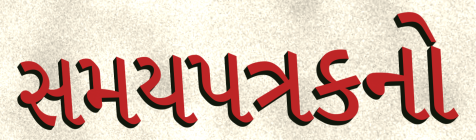
સમયપત્રકનો